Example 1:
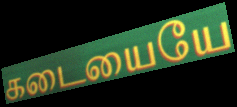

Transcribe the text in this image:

கடையையே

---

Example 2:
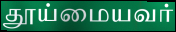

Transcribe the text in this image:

தூய்மையவர்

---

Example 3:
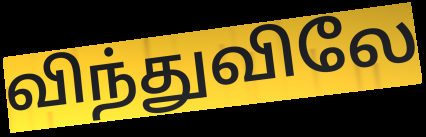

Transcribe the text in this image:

விந்துவிலே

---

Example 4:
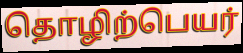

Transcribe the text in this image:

தொழிற்பெயர்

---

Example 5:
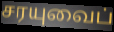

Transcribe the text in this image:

சரயுவைப்